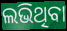
ଲଭିଥିବା